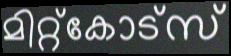
മിറ്റ്കോട്സ്